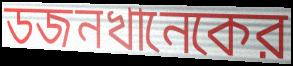
ডজনখানেকের